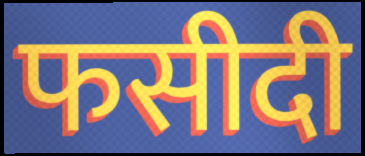
फसीदी